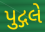
પુદ્ગલે